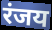
रंजय